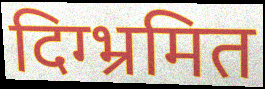
दिग्भ्रमित